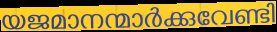
യജമാനന്മാർക്കുവേണ്ടി